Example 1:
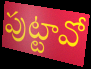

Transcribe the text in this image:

పుట్టావో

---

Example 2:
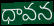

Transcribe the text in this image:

ధావన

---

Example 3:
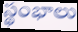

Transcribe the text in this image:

స్థంభాలు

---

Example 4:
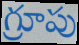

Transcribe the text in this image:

గ్రూపు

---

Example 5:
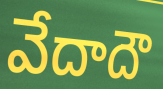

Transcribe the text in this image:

వేదాదౌ